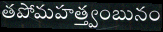
తపోమహత్త్వంబునం